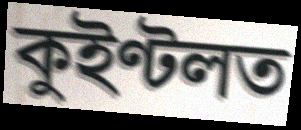
কুইণ্টলত